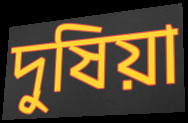
দুষিয়া